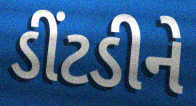
ડીંટડીને